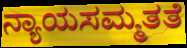
ನ್ಯಾಯಸಮ್ಮತತೆ